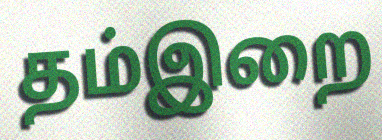
தம்இறை